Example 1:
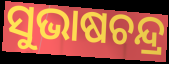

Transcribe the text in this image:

ସୁଭାଷଚନ୍ଦ୍ର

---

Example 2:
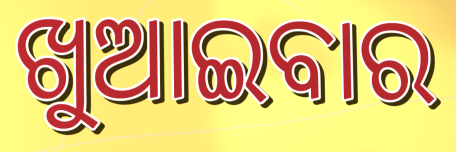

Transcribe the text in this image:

ଖୁଆଇବାର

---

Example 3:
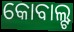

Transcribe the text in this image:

କୋବାଲ୍ଟ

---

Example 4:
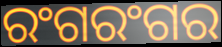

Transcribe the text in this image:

ରଂଗରଂଗର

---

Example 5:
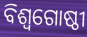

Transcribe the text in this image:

ବିଶ୍ୱଗୋଷ୍ଠୀ